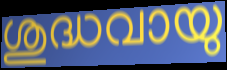
ശുദ്ധവായു